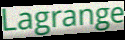
Lagrange